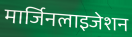
मार्जिनलाइजेशन